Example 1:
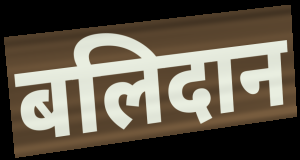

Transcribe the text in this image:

बलिदान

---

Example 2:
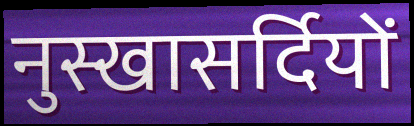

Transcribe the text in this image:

नुस्खासर्दियों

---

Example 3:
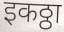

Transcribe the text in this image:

इकठ्ठा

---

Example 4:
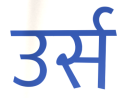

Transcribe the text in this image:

उर्स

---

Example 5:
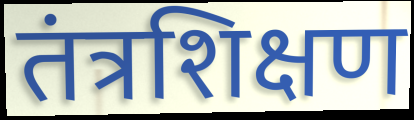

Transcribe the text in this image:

तंत्रशिक्षण